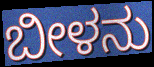
ಬೀಳನು